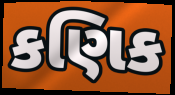
કણિક